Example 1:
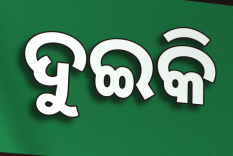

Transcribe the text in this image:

ଦୁଇକି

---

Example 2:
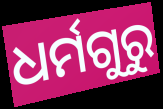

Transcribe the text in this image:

ଧର୍ମଗୁରୁ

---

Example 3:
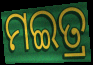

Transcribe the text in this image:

ମଇତ୍ର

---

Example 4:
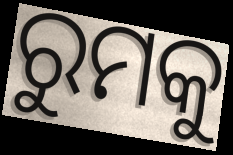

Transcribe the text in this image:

ରୁମକୁ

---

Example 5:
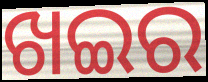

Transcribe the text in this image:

ଖଇର